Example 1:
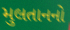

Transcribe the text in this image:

મુલતાનનો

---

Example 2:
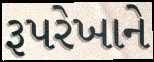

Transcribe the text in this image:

રૂપરેખાને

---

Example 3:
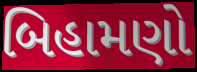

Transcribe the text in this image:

બિહામણો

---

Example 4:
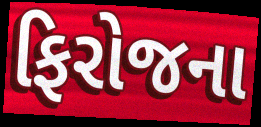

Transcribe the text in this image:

ફિરોજના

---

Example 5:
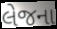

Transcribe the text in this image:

લેજના